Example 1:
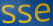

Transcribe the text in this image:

sse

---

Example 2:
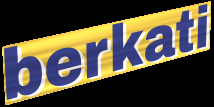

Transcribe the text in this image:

berkati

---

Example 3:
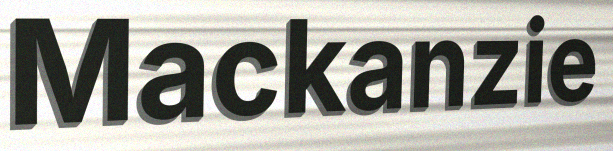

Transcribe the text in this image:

Mackanzie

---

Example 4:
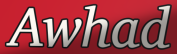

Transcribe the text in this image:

Awhad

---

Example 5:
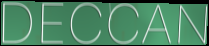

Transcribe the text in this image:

DECCAN